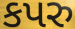
કપરુ